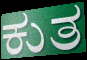
ಕುತ